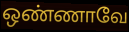
ஒண்ணாவே